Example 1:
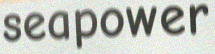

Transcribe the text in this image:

seapower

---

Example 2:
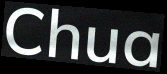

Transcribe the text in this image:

Chua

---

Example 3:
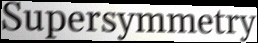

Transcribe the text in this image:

Supersymmetry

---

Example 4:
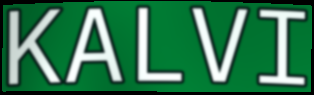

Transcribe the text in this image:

KALVI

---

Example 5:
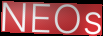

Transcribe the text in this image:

NEOs